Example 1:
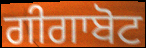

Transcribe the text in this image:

ਗੀਗਾਬੋਟ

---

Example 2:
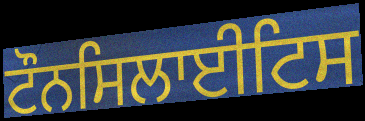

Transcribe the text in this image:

ਟੌਨਸਿਲਾਈਟਿਸ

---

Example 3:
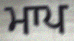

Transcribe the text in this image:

ਮਾਪ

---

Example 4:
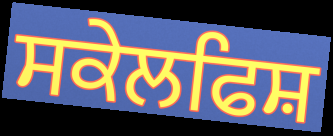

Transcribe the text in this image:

ਸਕੇਲਫਿਸ਼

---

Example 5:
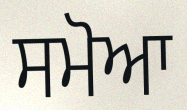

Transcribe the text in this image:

ਸਮੋਆ